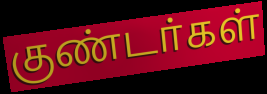
குண்டர்கள்